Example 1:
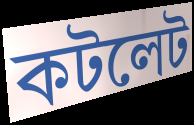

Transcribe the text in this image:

কটলেট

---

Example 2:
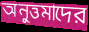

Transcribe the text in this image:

অনুত্তমাদের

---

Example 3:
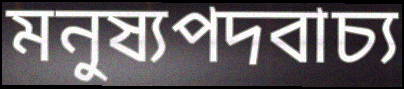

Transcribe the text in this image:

মনুষ্যপদবাচ্য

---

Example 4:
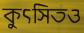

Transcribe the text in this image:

কুৎসিতও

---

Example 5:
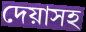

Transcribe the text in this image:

দেয়াসহ